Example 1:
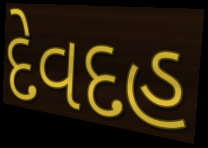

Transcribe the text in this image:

દેવદહ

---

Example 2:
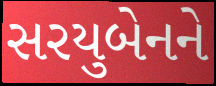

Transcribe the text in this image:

સરયુબેનને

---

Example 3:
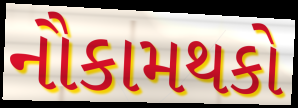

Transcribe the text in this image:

નૌકામથકો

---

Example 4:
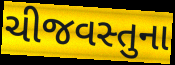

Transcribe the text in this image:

ચીજવસ્તુના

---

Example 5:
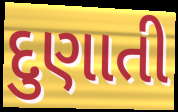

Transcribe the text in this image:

દુણાતી